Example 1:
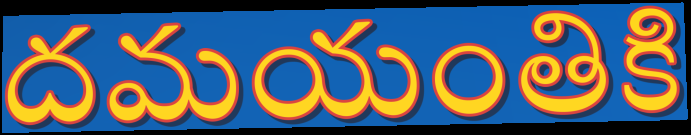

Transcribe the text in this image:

దమయంతికి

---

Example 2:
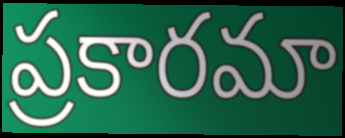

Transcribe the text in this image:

ప్రకారమా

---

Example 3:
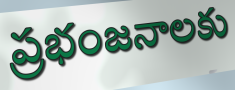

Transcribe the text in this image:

ప్రభంజనాలకు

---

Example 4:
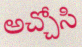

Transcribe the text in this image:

అచ్చోసి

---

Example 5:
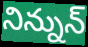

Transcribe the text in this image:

నిన్నున్